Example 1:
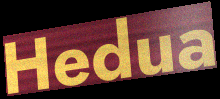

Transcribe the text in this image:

Hedua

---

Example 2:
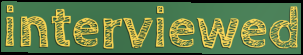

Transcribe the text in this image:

interviewed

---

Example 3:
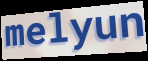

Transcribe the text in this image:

melyun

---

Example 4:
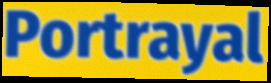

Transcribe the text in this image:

Portrayal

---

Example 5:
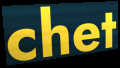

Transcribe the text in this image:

chet